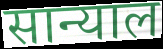
सान्याल